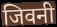
जिवनी